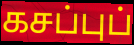
கசப்புப்